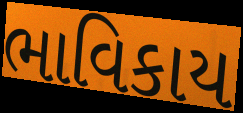
ભાવિકાય